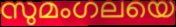
സുമംഗലയെ